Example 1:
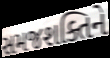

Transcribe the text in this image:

સમજશક્તિને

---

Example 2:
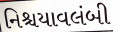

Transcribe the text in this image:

નિશ્ચયાવલંબી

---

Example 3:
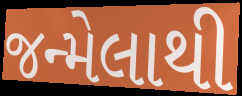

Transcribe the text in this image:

જન્મેલાથી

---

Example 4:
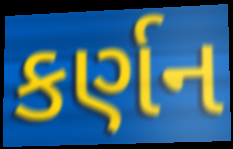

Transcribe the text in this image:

કર્ણન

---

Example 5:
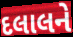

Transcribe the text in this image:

દલાલને